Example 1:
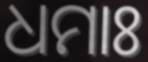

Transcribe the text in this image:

ଧମାଃ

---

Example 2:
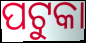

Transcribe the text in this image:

ପଟୁକା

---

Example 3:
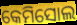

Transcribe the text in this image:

କେମିସୋଲ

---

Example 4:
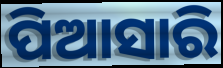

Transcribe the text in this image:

ପିଆସାରି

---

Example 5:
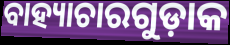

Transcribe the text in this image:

ବାହ୍ୟାଚାରଗୁଡ଼ାକ